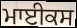
ਮਾਈਕਸ